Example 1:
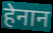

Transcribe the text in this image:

हेनान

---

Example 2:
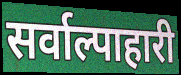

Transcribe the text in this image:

सर्वाल्पाहारी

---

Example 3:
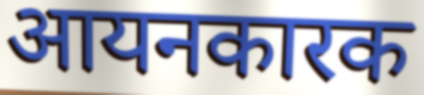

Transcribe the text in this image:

आयनकारक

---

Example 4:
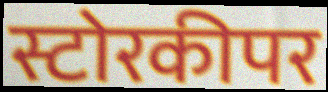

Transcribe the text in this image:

स्टोरकीपर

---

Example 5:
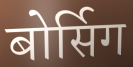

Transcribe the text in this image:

बोर्सिग